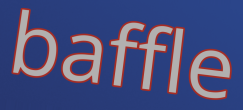
baffle